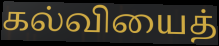
கல்வியைத்